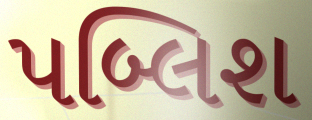
પબ્લિશ